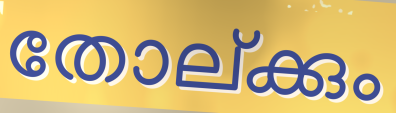
തോല്ക്കും